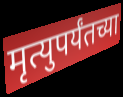
मृत्युपर्यंतच्या